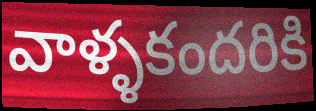
వాళ్ళకందరికి